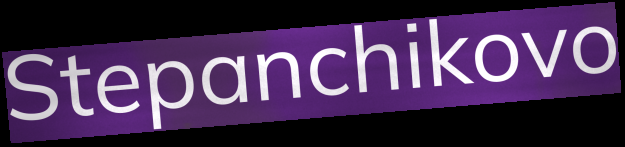
Stepanchikovo